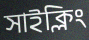
সাইক্লিং